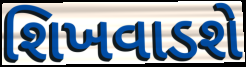
શિખવાડશે